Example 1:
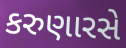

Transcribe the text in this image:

કરુણારસે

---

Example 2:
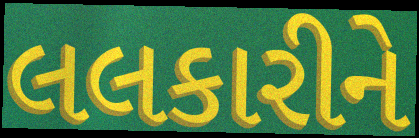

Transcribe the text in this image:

લલકારીને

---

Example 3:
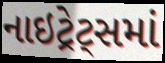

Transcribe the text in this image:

નાઇટ્રેટ્સમાં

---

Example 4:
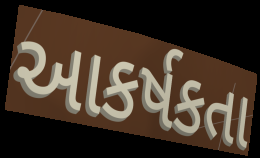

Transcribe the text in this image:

આકર્ષકતા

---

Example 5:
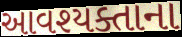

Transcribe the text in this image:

આવશ્યક્તાના